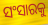
ସଂସାରକୁ